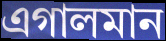
এগালমান